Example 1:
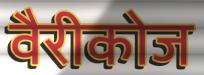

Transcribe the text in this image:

वैरीकोज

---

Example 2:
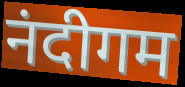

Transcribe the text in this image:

नंदीगम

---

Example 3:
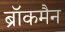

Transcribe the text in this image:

ब्रॉकमैन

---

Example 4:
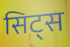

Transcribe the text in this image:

सिट्स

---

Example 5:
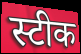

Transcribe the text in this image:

स्टीक